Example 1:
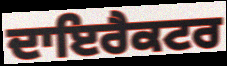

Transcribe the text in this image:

ਦਾਇਰੈਕਟਰ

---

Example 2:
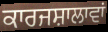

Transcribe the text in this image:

ਕਾਰਜਸ਼ਾਲਾਵਾਂ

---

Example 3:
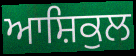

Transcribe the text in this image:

ਆਸ਼ਿਕੁਲ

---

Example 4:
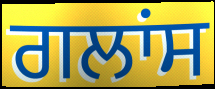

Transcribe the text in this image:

ਗਲਾਂਸ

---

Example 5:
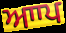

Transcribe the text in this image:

ਆਾਪ